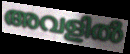
അവളിൽ